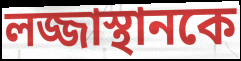
লজ্জাস্থানকে